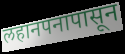
लहानपनापासून